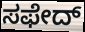
ಸಫೇದ್